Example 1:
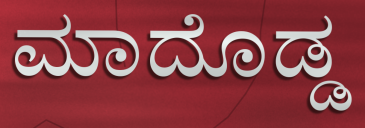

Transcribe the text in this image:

ಮಾದೊಡ್ಡ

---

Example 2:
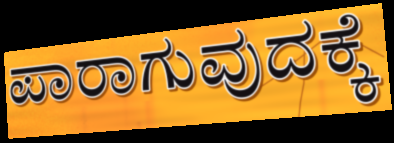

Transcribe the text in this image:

ಪಾರಾಗುವುದಕ್ಕೆ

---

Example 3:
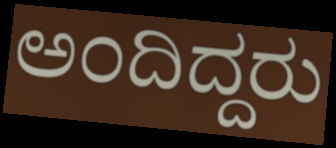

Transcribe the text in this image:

ಅಂದಿದ್ದರು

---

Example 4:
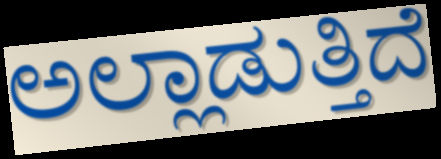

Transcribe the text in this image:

ಅಲ್ಲಾಡುತ್ತಿದೆ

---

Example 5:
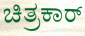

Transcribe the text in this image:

ಚಿತ್ರಕಾರ್